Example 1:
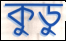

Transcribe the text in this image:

কুডু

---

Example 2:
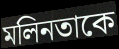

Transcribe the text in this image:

মলিনতাকে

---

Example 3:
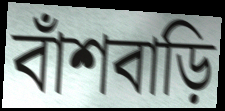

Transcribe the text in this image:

বাঁশবাড়ি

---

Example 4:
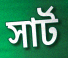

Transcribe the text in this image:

সার্ট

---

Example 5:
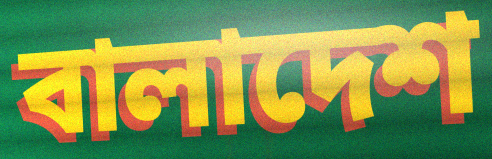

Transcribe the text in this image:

বালাদেশ